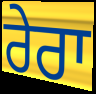
ਰੇਰਾ